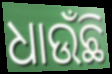
ଧାଉଁଛି